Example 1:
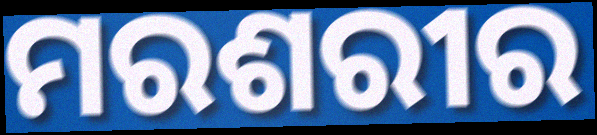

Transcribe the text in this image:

ମରଶରୀର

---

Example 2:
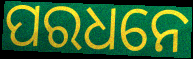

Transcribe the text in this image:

ପରଧନେ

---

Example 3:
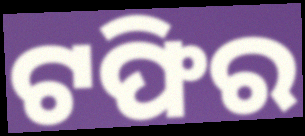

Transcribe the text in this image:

ଟଫିର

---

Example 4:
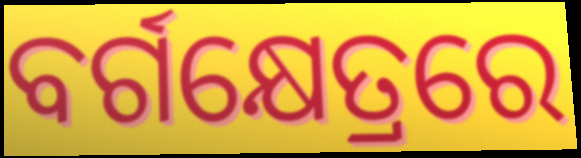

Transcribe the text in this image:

ବର୍ଗକ୍ଷେତ୍ରରେ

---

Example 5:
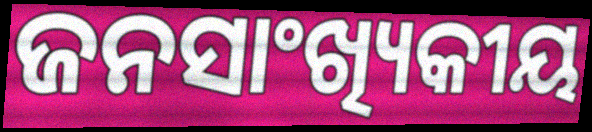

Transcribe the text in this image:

ଜନସାଂଖ୍ୟିକୀୟ